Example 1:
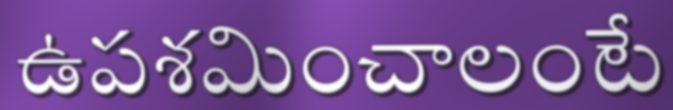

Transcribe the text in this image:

ఉపశమించాలంటే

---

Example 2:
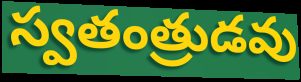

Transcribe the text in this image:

స్వతంత్రుడవు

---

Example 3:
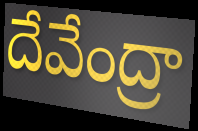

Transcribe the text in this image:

దేవేంద్రా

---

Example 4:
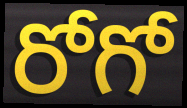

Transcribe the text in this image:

రోగో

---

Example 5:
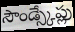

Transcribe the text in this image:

సౌండ్స్కేప్లు